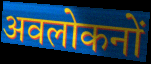
अवलोकनों